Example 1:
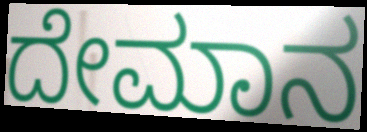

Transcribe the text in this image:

ದೇಮಾನ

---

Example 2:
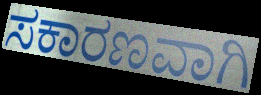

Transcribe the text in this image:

ಸಕಾರಣವಾಗಿ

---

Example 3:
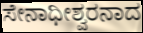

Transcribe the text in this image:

ಸೇನಾಧೀಶ್ವರನಾದ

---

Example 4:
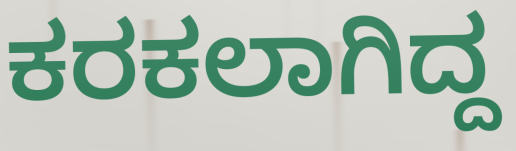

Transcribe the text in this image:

ಕರಕಲಾಗಿದ್ದ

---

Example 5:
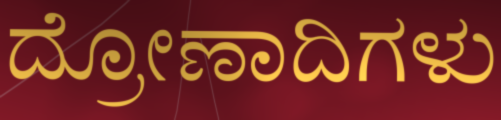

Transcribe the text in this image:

ದ್ರೋಣಾದಿಗಳು